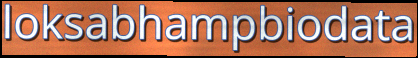
loksabhampbiodata